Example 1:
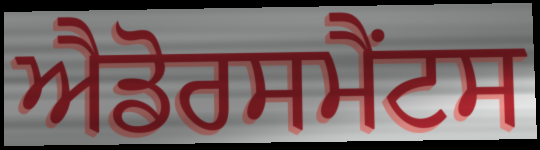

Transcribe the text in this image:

ਐਡੋਰਸਮੈਂਟਸ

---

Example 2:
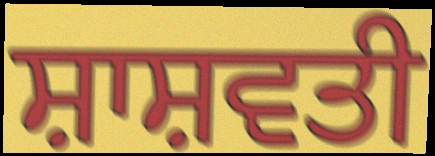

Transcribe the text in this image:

ਸ਼ਾਸ਼ਵਤੀ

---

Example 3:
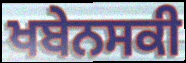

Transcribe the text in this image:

ਖਬੇਨਸਕੀ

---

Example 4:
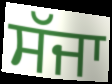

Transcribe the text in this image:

ਸੱਜਾ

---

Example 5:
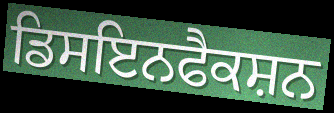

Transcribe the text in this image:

ਡਿਸਇਨਫੈਕਸ਼ਨ